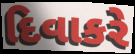
દિવાકરે